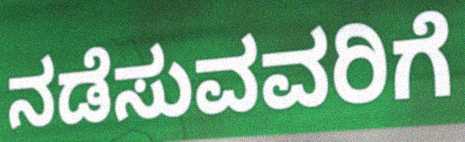
ನಡೆಸುವವರಿಗೆ